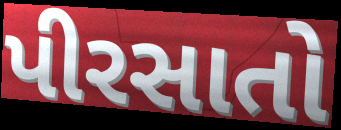
પીરસાતો